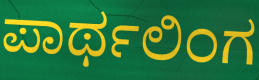
ಪಾರ್ಥಲಿಂಗ